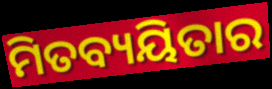
ମିତବ୍ୟୟିତାର